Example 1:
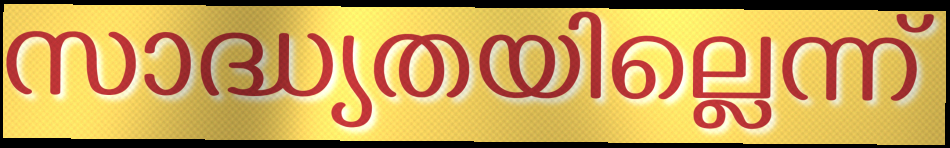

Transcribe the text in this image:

സാദ്ധ്യതയില്ലെന്ന്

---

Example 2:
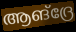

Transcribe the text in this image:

ആങ്ദ്രേ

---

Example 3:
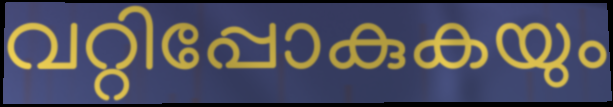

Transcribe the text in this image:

വറ്റിപ്പോകുകയും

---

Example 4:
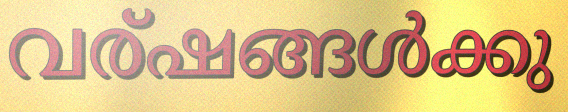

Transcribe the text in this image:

വര്ഷങ്ങൾക്കു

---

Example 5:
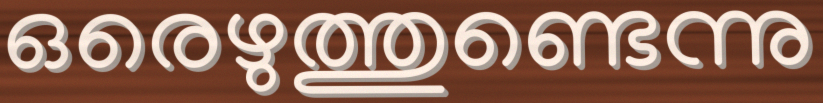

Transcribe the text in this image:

ഒരെഴുത്തുണ്ടെന്നു